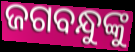
ଜଗବନ୍ଧୁଙ୍କୁ